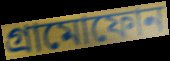
গ্ৰামোফোন